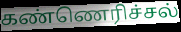
கண்ணெரிச்சல்